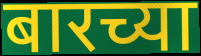
बारच्या